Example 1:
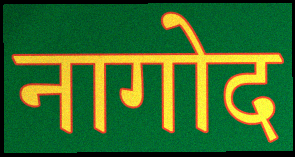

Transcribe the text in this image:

नागोद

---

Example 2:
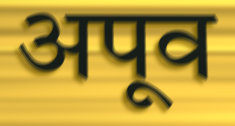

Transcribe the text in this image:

अपूव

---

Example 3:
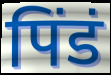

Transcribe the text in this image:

पिंडं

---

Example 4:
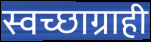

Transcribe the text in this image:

स्वच्छाग्राही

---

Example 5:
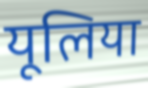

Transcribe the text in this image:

यूलिया